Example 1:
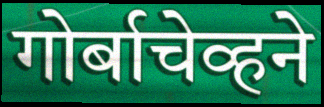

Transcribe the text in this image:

गोर्बाचेव्हने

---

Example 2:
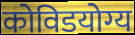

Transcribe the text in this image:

कोविडयोग्य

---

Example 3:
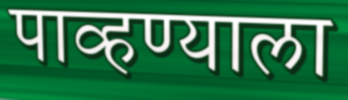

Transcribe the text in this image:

पाव्हण्याला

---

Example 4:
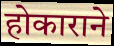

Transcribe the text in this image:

होकाराने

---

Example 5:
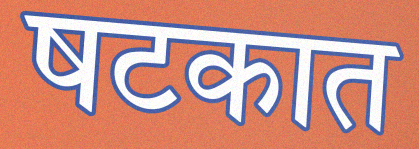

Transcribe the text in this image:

षटकात